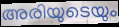
അരിയുടെയും